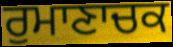
ਰੁਮਾਣਾਚਕ